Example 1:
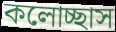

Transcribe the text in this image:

কলোচ্ছাস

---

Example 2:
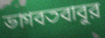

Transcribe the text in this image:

ভাগবতবাবুর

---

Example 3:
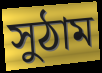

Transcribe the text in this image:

সুঠাম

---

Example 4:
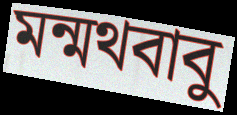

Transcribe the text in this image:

মন্মথবাবু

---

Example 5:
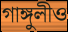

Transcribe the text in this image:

গাঙ্গুলীও